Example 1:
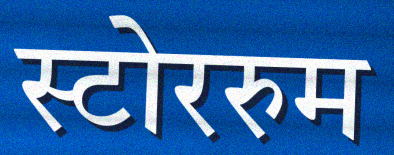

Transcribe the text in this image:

स्टोररुम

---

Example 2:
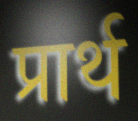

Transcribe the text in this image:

प्रार्थ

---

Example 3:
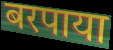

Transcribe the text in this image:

बरपाया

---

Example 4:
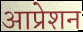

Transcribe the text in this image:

आप्रेशन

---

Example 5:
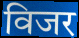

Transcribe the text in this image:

विजर